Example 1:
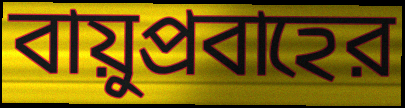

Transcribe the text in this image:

বায়ুপ্রবাহের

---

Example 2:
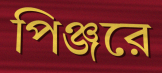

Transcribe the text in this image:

পিঞ্জরে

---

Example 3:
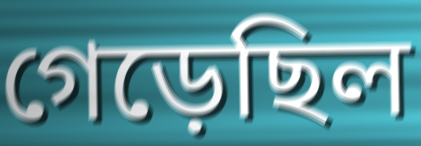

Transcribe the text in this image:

গেড়েছিল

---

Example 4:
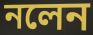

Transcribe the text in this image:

নলেন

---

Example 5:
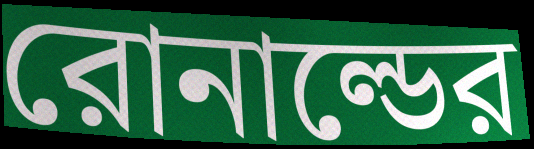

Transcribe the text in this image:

রোনাল্ডের